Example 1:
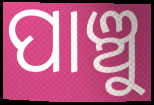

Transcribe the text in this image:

ପାଞ୍ଚୁ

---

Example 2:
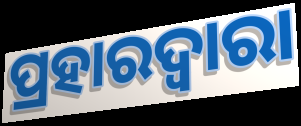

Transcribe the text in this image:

ପ୍ରହାରଦ୍ଵାରା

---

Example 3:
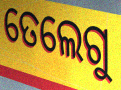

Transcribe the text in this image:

ତେଲେଗୁ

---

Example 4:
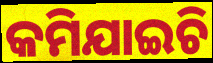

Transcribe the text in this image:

କମିଯାଇଚି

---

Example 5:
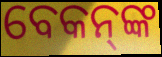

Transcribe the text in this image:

ବେକନ୍‌ଙ୍କ